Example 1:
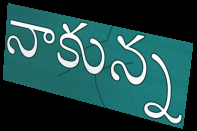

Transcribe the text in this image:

నాకున్న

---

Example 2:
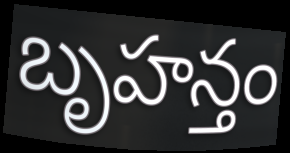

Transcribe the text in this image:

బృహన్తం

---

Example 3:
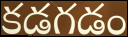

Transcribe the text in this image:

కడగడం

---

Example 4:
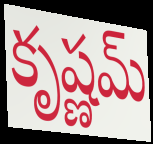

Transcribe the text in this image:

కృష్ణమ్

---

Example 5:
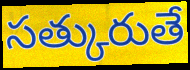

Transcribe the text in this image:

సత్కురుతే